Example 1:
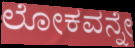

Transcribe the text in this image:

ಲೋಕವನ್ನೇ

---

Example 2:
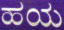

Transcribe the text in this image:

ಹಯ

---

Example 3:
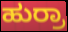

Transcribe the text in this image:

ಹುರ್ರಾ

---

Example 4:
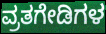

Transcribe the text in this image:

ವ್ರತಗೇಡಿಗಳ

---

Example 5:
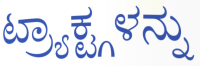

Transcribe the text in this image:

ಟ್ರ್ಯಾಕ್ಟ್ಗಳನ್ನು